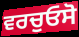
ਵਰਚੁਓਸੋ